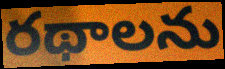
రథాలను